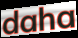
daha